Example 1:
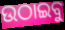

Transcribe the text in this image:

ଉଠାଇବୁ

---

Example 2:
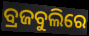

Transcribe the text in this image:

ବ୍ରଜବୁଲିରେ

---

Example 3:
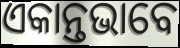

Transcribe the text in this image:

ଏକାନ୍ତଭାବେ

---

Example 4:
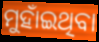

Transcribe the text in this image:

ମୁହାଁଇଥିବା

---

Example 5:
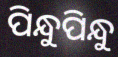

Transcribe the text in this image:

ପିନ୍ଧୁପିନ୍ଧୁ